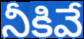
నీకివే